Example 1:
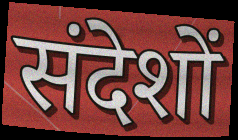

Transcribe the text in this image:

संदेशों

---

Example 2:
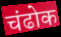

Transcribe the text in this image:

चंढोक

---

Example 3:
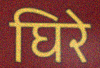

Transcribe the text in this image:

घिरे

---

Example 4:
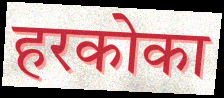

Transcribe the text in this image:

हरकोका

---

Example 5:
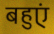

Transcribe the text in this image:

बहुएं